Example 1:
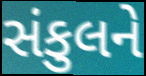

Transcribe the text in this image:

સંકુલને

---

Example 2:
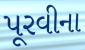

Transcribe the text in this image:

પૂરવીના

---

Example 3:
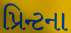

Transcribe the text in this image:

પ્રિન્ટના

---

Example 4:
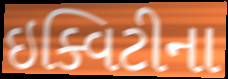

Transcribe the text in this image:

ઇક્વિટીના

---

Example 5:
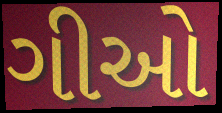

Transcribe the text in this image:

ગીઓ